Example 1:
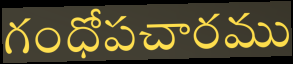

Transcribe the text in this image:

గంధోపచారము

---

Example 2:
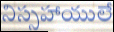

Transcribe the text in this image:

నిస్సహాయులే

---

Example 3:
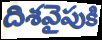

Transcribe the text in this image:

దిశవైపుకి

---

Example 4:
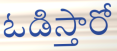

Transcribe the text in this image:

ఓడిస్తారో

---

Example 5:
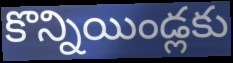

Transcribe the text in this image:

కొన్నియిండ్లకు